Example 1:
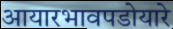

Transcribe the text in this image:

आयारभावपडोयारे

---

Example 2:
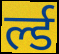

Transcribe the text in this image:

र्ल्ड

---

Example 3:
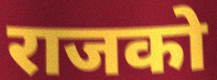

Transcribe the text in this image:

राजको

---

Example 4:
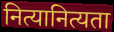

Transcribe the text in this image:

नित्यानित्यता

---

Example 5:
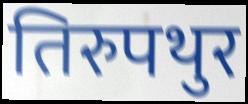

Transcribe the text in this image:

तिरुपथुर